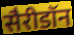
सैरीडॉन